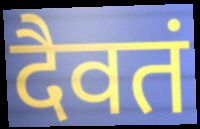
दैवतं